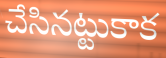
చేసినట్టుకాక